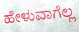
ಹೇಳುವಾಗೆಲ್ಲ